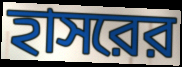
হাসরের